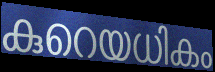
കുറെയധികം